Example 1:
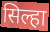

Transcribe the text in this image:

सिल्हा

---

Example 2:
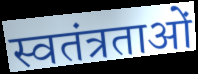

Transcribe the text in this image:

स्वतंत्रताओं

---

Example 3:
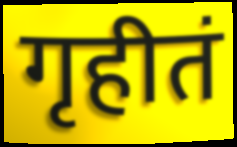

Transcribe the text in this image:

गृहीतं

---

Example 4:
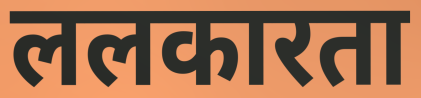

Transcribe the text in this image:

ललकारता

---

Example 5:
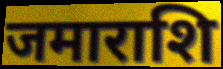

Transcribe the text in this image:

जमाराशि